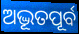
ଅଦ୍ଭୂତପୂର୍ବ